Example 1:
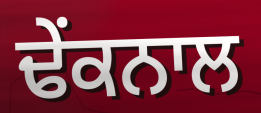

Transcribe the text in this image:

ਢੇਂਕਨਾਲ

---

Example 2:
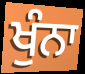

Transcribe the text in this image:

ਖੁੰਨਾ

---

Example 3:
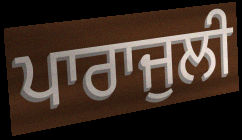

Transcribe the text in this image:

ਪਾਰਾਜੁਲੀ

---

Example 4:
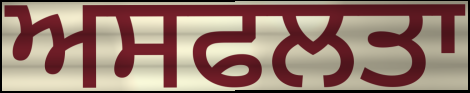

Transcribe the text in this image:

ਅਸਫਲਤਾ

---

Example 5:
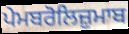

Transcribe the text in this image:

ਪੇਮਬਰੋਲਿਜ਼ੁਮਾਬ